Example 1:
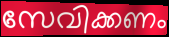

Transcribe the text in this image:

സേവിക്കണം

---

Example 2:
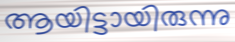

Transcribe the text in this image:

ആയിട്ടായിരുന്നു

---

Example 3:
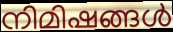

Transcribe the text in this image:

നിമിഷങ്ങൾ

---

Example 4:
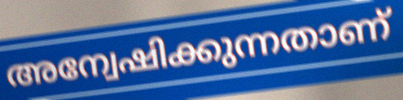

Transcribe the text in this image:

അന്വേഷിക്കുന്നതാണ്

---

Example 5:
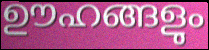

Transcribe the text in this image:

ഊഹങ്ങളും